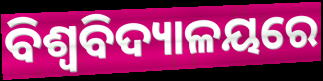
ବିଶ୍ୱବିଦ୍ୟାଳୟରେ